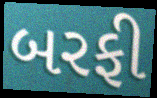
બરફી